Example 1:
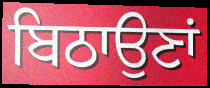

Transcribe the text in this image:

ਬਿਠਾਉਣਾਂ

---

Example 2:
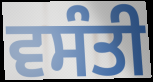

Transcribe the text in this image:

ਵਸੰਤੀ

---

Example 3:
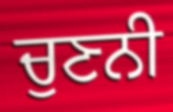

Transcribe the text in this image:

ਚੁਣਨੀ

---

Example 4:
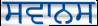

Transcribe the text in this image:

ਸਵਾਨਸ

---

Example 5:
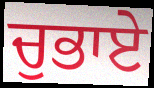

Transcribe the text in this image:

ਚੁਭਾਏ